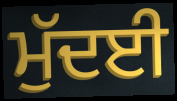
ਮੁੱਦਈ